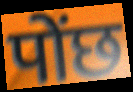
पोंछ